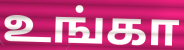
உங்கா